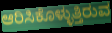
ಆರಿಸಿಕೊಳ್ಳುತ್ತಿರುವ